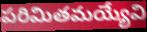
పరిమితమయ్యేవి